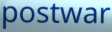
postwar